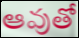
ఆవుతో